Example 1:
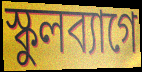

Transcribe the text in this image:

স্কুলব্যাগে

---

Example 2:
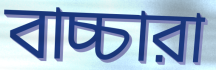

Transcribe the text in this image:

বাচ্চারা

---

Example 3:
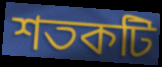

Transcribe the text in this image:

শতকটি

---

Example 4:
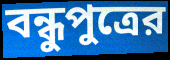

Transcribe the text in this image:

বন্ধুপুত্রের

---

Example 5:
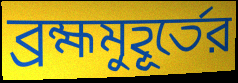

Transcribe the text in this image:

ব্রহ্মমুহূর্তের